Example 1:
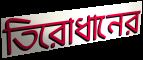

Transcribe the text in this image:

তিরোধানের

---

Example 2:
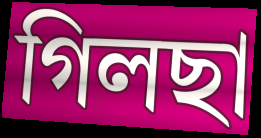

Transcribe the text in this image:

গিলছা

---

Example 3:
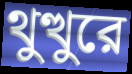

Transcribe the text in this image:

থুত্থুরে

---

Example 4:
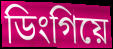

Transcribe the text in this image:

ডিংগিয়ে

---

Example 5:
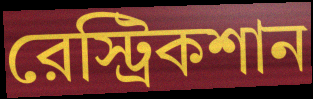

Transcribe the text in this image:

রেস্ট্রিকশান